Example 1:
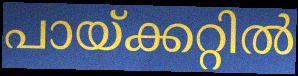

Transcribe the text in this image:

പായ്ക്കറ്റിൽ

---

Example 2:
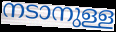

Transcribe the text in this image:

നടാനുള്ള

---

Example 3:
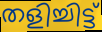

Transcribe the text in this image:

തളിച്ചിട്ട്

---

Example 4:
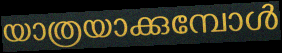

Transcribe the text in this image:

യാത്രയാക്കുമ്പോൾ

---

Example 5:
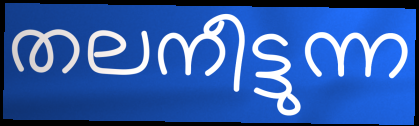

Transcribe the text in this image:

തലനീട്ടുന്ന